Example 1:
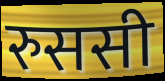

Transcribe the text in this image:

रुससी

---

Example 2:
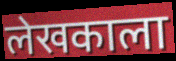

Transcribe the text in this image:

लेखकाला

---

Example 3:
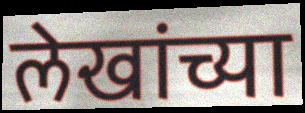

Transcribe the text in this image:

लेखांच्या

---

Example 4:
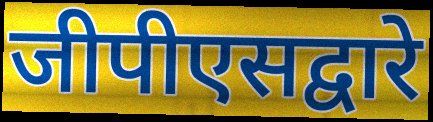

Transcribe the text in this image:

जीपीएसद्वारे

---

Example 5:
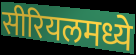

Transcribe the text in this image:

सीरियलमध्ये